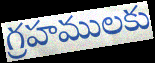
గ్రహములకు